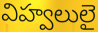
విహ్వలులై